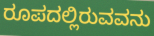
ರೂಪದಲ್ಲಿರುವವನು